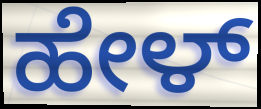
ಹೇಳ್